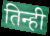
तिन्ही